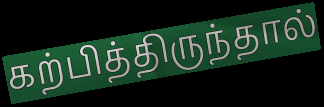
கற்பித்திருந்தால்